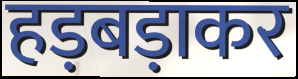
हड़बड़ाकर